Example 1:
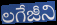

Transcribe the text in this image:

లగేజీని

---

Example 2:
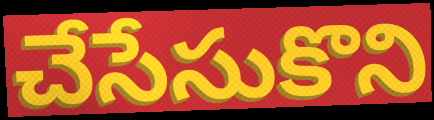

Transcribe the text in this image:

చేసేసుకొని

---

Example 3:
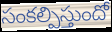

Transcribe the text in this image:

సంకల్పిస్తుందో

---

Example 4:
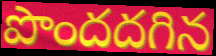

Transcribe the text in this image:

పొందదగిన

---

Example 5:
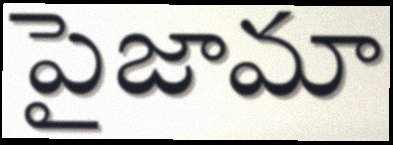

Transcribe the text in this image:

పైజామా